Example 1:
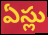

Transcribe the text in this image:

ఏస్లు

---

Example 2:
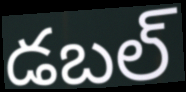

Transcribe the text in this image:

డబల్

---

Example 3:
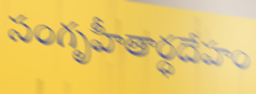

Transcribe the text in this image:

సంగృహీతార్ధదేహం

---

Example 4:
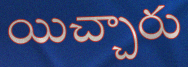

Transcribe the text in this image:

యిచ్చారు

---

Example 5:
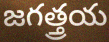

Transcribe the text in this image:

జగత్త్రయ